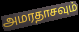
அமரதாசவும்